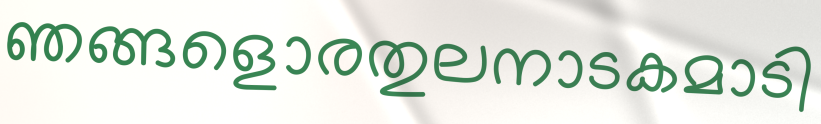
ഞങ്ങളൊരതുലനാടകമാടി